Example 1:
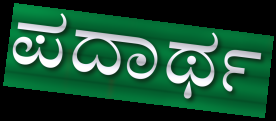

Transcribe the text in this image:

ಪದಾರ್ಥ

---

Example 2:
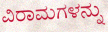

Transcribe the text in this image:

ವಿರಾಮಗಳನ್ನು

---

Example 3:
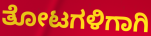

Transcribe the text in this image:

ತೋಟಗಳಿಗಾಗಿ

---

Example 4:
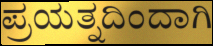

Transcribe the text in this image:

ಪ್ರಯತ್ನದಿಂದಾಗಿ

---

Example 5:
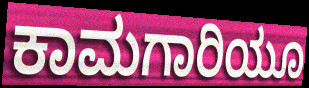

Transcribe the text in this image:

ಕಾಮಗಾರಿಯೂ